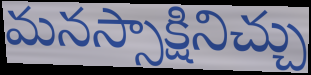
మనస్సాక్షినిచ్చు